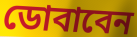
ডোবাবেন